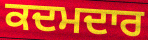
ਕਦਮਦਾਰ